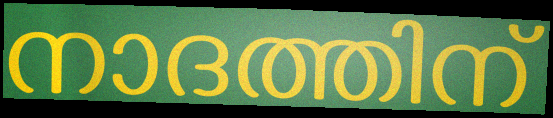
നാദത്തിന്